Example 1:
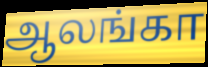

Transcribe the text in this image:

ஆலங்கா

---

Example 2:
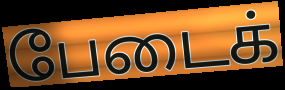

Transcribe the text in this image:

பேடைக்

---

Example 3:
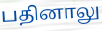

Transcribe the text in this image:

பதினாலு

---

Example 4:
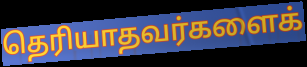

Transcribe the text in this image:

தெரியாதவர்களைக்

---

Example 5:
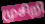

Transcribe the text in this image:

முசிறி